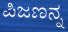
ಪಿಜಣನ್ನ